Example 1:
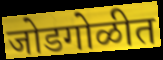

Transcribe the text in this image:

जोडगोळीत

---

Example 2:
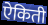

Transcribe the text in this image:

ऐकिती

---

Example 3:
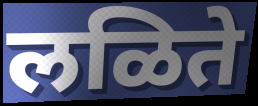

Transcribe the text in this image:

लळिते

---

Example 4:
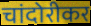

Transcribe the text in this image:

चांदोरीकर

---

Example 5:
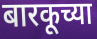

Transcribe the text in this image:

बारकूच्या